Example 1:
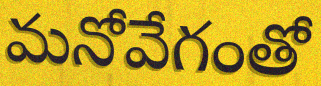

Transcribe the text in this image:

మనోవేగంతో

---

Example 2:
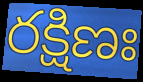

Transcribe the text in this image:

రక్షిణః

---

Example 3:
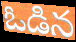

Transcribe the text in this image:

ఓడిన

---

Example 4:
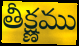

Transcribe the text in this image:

తీక్ష్ణము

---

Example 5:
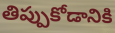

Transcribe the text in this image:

తిప్పుకోడానికి